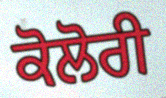
ਕੋਲੋਰੀ